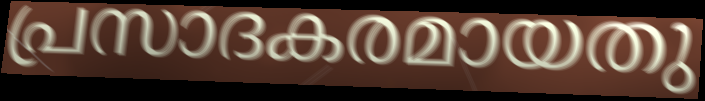
പ്രസാദകരമായതു